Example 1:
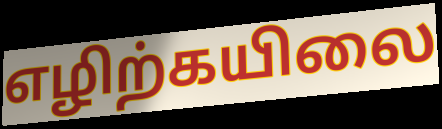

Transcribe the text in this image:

எழிற்கயிலை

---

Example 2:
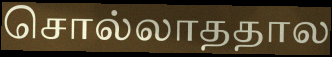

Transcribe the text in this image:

சொல்லாததால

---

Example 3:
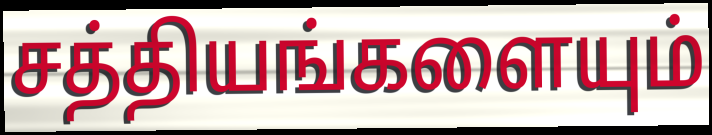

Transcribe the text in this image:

சத்தியங்களையும்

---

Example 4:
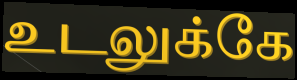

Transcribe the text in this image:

உடலுக்கே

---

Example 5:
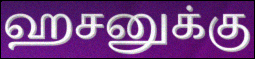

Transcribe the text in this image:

ஹசனுக்கு